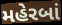
મહેરબાં